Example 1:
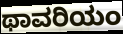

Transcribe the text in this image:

ಥಾವರಿಯಂ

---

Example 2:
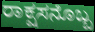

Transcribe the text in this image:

ರಾಕ್ಷಸನೊಬ್ಬ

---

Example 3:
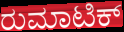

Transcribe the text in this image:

ರುಮಾಟಿಕ್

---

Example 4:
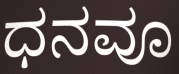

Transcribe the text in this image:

ಧನವೂ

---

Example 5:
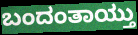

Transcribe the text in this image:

ಬಂದಂತಾಯ್ತು